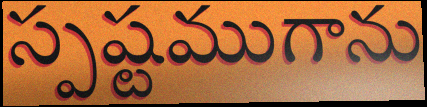
స్పష్టముగాను